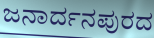
ಜನಾರ್ದನಪುರದ